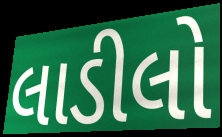
લાડીલો